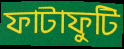
ফাটাফুটি